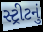
સ્ટ્રીટનું